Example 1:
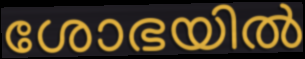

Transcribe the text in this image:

ശോഭയിൽ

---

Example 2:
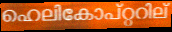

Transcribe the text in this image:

ഹെലികോപ്റ്ററില്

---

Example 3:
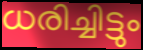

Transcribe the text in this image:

ധരിച്ചിട്ടും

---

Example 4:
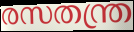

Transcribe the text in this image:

രസതന്ത്ര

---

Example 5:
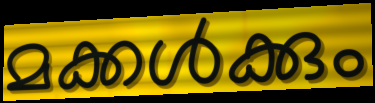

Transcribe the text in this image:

മക്കൾക്കും